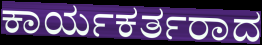
ಕಾರ್ಯಕರ್ತರಾದ